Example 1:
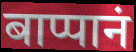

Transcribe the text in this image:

बाप्पानं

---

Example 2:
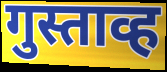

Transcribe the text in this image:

गुस्ताव्ह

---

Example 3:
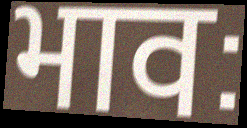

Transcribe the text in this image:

भावः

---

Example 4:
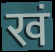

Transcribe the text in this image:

खं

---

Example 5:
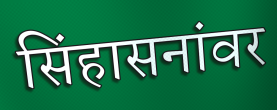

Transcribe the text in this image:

सिंहासनांवर